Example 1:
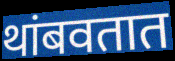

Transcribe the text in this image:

थांबवतात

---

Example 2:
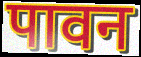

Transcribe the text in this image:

पावन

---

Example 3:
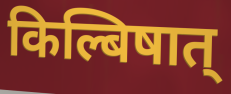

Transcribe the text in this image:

किल्बिषात्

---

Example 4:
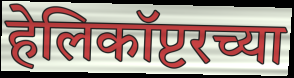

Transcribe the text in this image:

हेलिकॉप्टरच्या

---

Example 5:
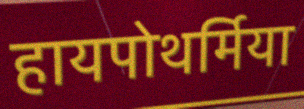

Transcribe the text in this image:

हायपोथर्मिया